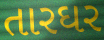
તારઘર